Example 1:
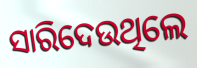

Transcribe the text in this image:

ସାରିଦେଉଥିଲେ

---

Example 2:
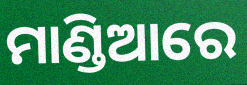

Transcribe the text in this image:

ମାଣ୍ଡିଆରେ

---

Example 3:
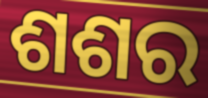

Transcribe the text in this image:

ଶଶର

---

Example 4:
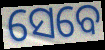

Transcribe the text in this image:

ସେବେ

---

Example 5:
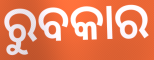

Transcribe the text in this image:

ରୁବକାର